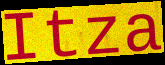
Itza